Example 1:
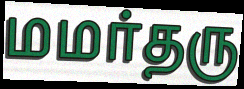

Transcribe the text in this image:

மமர்தரு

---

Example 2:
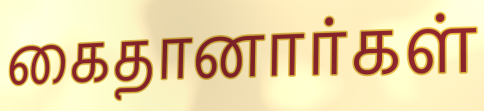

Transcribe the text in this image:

கைதானார்கள்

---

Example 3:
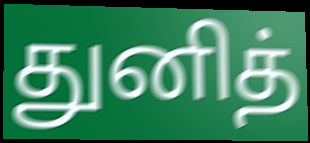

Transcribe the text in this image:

துனித்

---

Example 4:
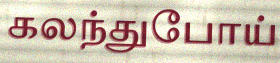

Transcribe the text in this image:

கலந்துபோய்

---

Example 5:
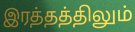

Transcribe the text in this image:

இரத்தத்திலும்